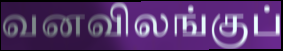
வனவிலங்குப்